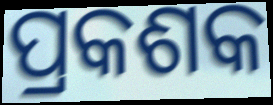
ପ୍ରକଶକ